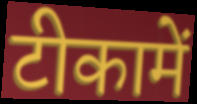
टीकामें